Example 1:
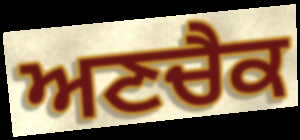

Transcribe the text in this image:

ਅਣਚੈਕ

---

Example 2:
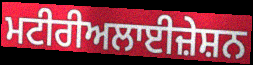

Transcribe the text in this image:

ਮਟੀਰੀਅਲਾਈਜ਼ੇਸ਼ਨ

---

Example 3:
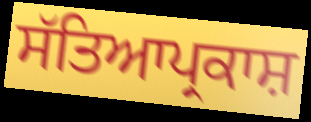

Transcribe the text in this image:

ਸੱਤਿਆਪ੍ਰਕਾਸ਼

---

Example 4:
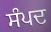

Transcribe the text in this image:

ਸੰਪਦ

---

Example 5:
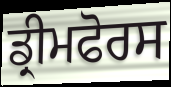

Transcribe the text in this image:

ਡ੍ਰੀਮਫੋਰਸ